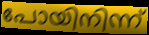
പോയിനിന്ന്